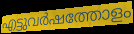
എട്ടുവർഷത്തോളം